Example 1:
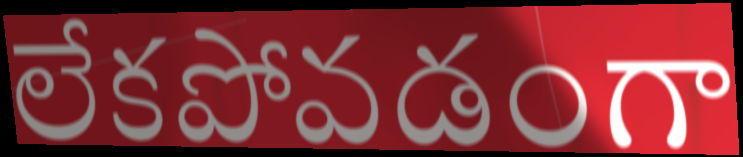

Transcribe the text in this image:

లేకపోవడంగా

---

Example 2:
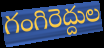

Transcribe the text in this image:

గంగిరెద్దుల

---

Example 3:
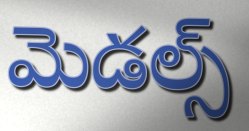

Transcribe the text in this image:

మెడల్స్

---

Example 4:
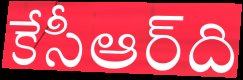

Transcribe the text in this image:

కేసీఆర్‌ది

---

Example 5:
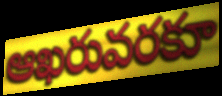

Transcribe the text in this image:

ఆఖరువరకూ